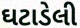
ઘટાડેલી